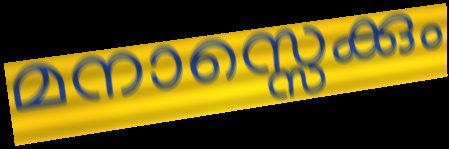
മനാസ്സെക്കും